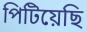
পিটিয়েছি